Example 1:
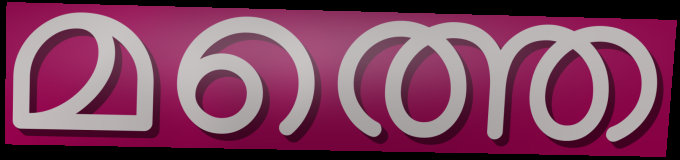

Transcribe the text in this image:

മത്തെ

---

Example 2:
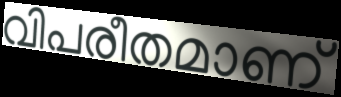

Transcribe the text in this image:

വിപരീതമാണ്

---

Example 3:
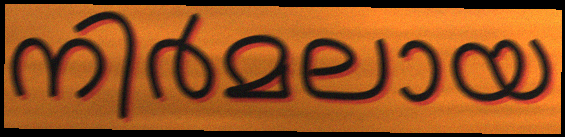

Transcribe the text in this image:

നിർമലായ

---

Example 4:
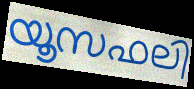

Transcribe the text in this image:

യൂസഫലി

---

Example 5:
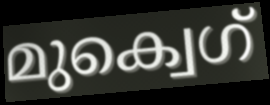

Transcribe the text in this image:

മുക്വെഗ്